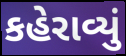
કહેરાવ્યું